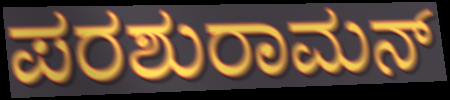
ಪರಶುರಾಮನ್